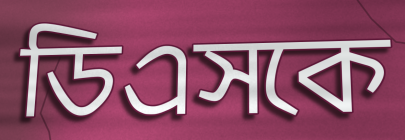
ডিএসকে